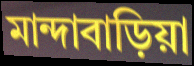
মান্দাবাড়িয়া